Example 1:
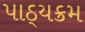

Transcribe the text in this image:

પાઠ્યક્રમ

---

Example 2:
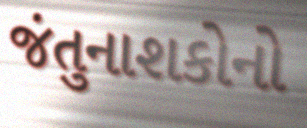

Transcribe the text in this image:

જંતુનાશકોનો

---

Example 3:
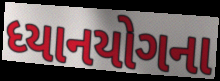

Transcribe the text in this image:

ધ્યાનયોગના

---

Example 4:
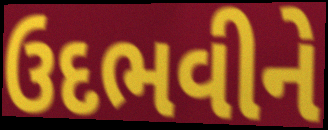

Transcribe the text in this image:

ઉદભવીને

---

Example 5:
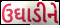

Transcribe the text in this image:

ઉઘાડીને